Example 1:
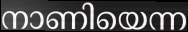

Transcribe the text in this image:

നാണിയെന്ന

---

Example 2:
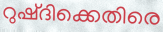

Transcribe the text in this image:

റുഷ്ദിക്കെതിരെ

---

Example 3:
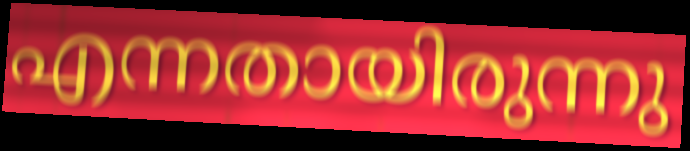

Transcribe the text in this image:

എന്നതായിരുന്നു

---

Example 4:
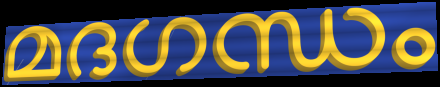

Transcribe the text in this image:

മദഗന്ധം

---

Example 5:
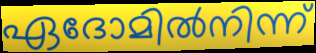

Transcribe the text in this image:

ഏദോമിൽനിന്ന്